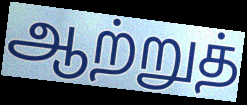
ஆற்றுத்